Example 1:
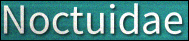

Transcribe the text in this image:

Noctuidae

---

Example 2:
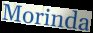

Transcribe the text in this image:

Morinda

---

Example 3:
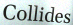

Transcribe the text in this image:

Collides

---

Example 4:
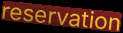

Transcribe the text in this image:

reservation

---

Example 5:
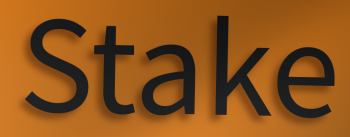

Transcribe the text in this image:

Stake